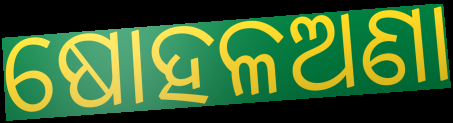
ଷୋହଳଅଣା